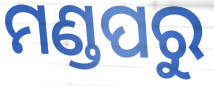
ମଣ୍ଡପରୁ